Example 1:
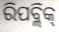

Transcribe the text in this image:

ରିପବ୍ଲିକ୍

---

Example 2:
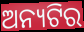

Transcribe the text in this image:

ଅନ୍ୟଟିର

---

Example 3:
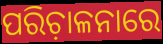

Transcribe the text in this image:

ପରିଚ଼ାଳନାରେ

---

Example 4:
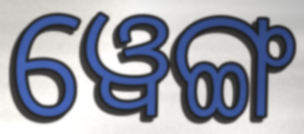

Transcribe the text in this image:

ୱେଙ୍ଗ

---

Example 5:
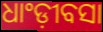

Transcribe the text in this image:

ଧାଂଡ଼ୀବସା